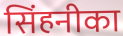
सिंहनीका